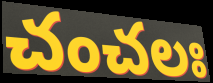
చంచలః